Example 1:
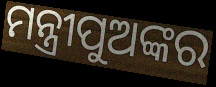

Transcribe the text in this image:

ମନ୍ତ୍ରୀପୁଅଙ୍କର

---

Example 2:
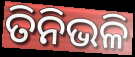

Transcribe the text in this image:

ତିନିଭଳି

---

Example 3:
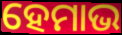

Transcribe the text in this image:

ହେମାଭ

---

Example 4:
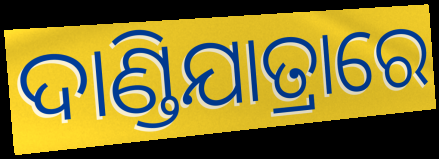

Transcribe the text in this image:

ଦାଣ୍ଡିଯାତ୍ରାରେ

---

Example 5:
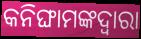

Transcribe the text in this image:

କନିଙ୍ଘାମଙ୍କଦ୍ଵାରା